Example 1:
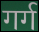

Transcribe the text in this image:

गर्ग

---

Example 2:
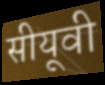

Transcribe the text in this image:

सीयूवी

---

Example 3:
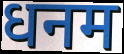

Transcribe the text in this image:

धनम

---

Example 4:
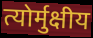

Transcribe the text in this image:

त्योर्मुक्षीय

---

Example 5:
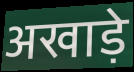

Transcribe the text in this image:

अखाड़े